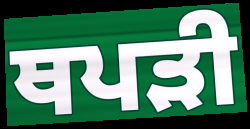
ਥਪੜੀ